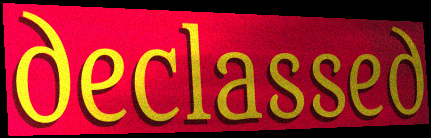
declassed